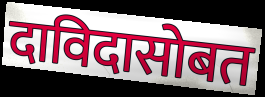
दाविदासोबत